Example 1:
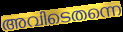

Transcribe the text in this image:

അവിടെതന്നെ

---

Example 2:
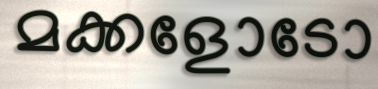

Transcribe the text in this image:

മക്കളോടോ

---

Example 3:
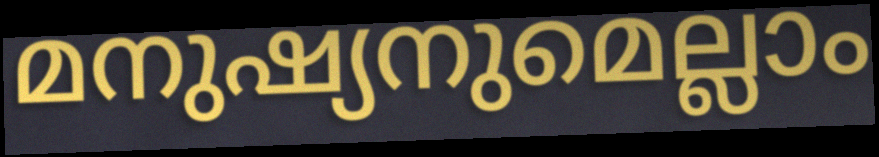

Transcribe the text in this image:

മനുഷ്യനുമെല്ലാം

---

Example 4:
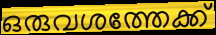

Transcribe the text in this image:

ഒരുവശത്തേക്ക്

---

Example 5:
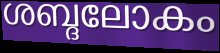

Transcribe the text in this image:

ശബ്ദലോകം